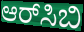
ಆರ್‌ಸಿಬಿ